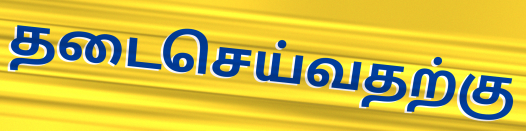
தடைசெய்வதற்கு